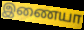
இணையா